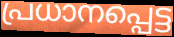
പ്രധാനപ്പെട്ട